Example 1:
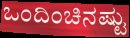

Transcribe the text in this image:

ಒಂದಿಂಚಿನಷ್ಟು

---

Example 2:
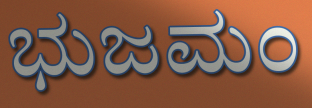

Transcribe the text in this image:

ಭುಜಮಂ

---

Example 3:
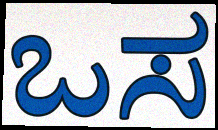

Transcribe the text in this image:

ಒಸ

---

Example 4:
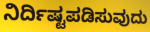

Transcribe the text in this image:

ನಿರ್ದಿಷ್ಟಪಡಿಸುವುದು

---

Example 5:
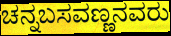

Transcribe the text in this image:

ಚನ್ನಬಸವಣ್ಣನವರು